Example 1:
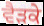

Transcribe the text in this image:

ਵੈੜਕੇ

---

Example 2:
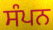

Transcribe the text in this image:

ਸੰਪਨ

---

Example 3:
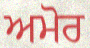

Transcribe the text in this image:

ਅਮੋਰ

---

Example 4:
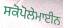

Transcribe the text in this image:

ਸਕੋਪੋਲੇਮਾਈਨ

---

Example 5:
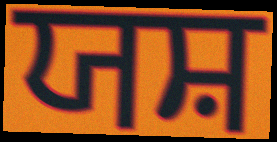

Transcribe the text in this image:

ਯਸ਼